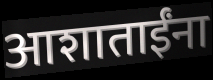
आशाताईंना